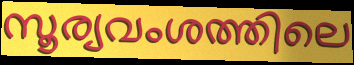
സൂര്യവംശത്തിലെ